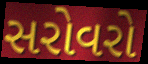
સરોવરો